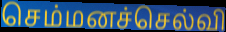
செம்மனச்செல்வி